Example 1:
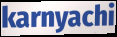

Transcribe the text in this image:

karnyachi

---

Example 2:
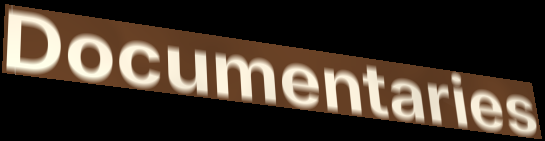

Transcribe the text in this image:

Documentaries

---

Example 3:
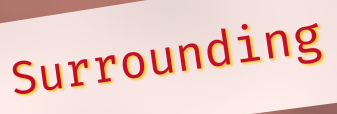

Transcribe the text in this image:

Surrounding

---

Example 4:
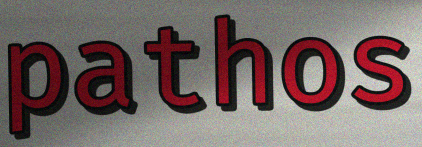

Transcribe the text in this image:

pathos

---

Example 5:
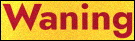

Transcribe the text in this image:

Waning